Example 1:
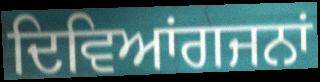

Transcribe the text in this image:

ਦਿਵਿਆਂਗਜਨਾਂ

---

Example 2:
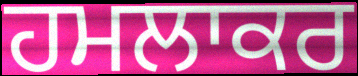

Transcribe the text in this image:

ਹਮਲਾਕਰ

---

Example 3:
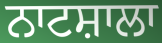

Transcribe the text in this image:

ਨਾਟਸ਼ਾਲਾ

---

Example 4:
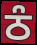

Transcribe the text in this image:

ਠੰ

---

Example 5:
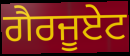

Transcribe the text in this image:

ਗੈਰਜੂਏਟ